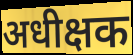
अधीक्षक